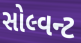
સોલ્વન્ટ